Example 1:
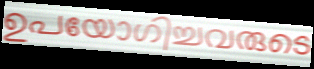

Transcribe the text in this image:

ഉപയോഗിച്ചവരുടെ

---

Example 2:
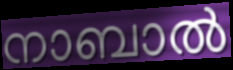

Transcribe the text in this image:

നാബാൽ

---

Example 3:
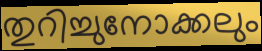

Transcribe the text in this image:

തുറിച്ചുനോക്കലും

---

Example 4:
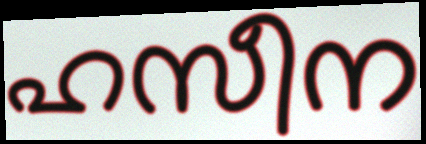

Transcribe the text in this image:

ഹസീന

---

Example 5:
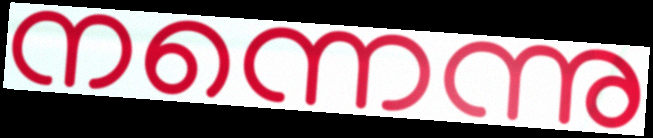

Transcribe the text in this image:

നന്നെന്നു